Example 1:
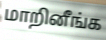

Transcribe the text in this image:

மாறினீங்க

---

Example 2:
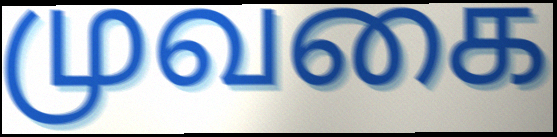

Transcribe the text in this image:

முவகை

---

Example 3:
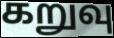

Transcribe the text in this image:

கறுவு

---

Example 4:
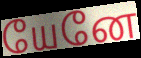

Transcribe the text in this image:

யேனே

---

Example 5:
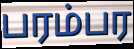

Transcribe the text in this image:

பரம்பர